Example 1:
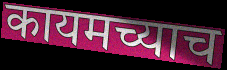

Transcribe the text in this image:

कायमच्याच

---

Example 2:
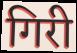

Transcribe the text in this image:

गिरी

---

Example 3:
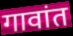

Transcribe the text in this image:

गावांत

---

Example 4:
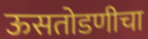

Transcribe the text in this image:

ऊसतोडणीचा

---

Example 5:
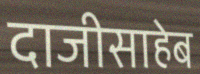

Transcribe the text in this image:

दाजीसाहेब